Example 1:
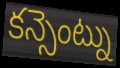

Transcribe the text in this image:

కన్సెంట్ను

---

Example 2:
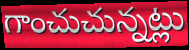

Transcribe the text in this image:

గాంచుచున్నట్లు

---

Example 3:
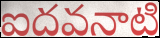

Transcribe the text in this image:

ఐదవనాటి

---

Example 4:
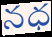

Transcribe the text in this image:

నధ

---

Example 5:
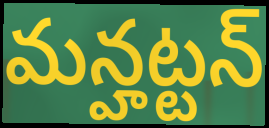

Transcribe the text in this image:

మన్హట్టన్